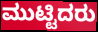
ಮುಟ್ಟಿದರು